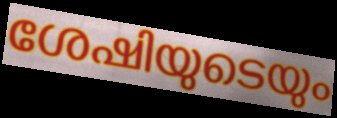
ശേഷിയുടെയും